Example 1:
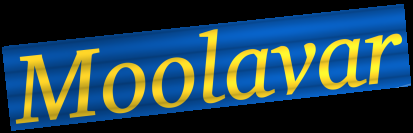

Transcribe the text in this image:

Moolavar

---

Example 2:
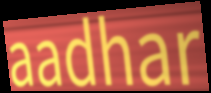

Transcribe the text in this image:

aadhar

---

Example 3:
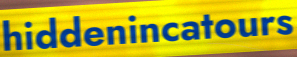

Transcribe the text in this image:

hiddenincatours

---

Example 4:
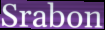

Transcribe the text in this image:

Srabon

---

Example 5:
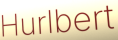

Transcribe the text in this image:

Hurlbert